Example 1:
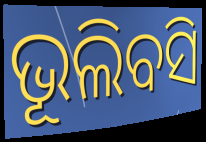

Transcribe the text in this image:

ଭୂଲିବସି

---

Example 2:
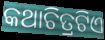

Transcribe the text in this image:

କଥାଚିତ୍ରଟିଏ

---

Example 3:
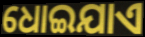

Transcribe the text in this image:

ଧୋଇଯାଏ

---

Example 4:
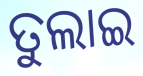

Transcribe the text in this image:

ତୁଲାଇ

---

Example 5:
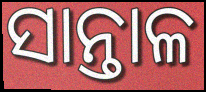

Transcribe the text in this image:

ସାନ୍ତାଳ